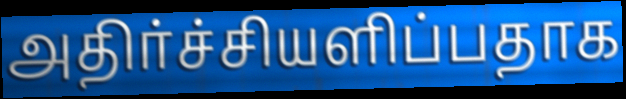
அதிர்ச்சியளிப்பதாக